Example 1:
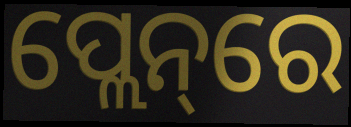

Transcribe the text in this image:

ପ୍ଲେନ୍‌ରେ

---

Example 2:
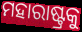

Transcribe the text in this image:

ମହାରାଷ୍ଟ୍ରକୁ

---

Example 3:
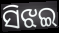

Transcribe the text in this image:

ସିଝଇ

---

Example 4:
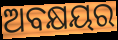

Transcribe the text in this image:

ଅବକ୍ଷୟର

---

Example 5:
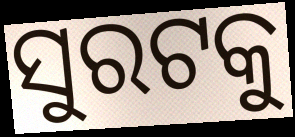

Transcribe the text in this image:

ସୁରଟକୁ